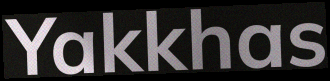
Yakkhas